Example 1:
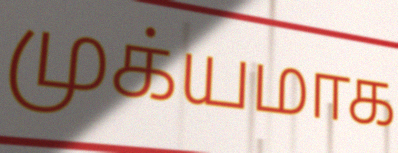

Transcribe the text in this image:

முக்யமாக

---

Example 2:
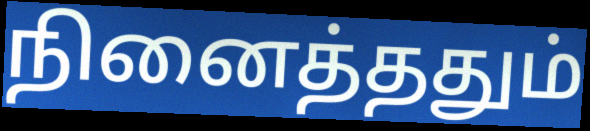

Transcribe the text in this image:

நினைத்ததும்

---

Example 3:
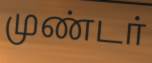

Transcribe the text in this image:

முண்டர்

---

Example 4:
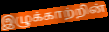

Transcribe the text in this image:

இழுக்காற்றின்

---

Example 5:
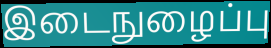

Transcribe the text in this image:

இடைநுழைப்பு